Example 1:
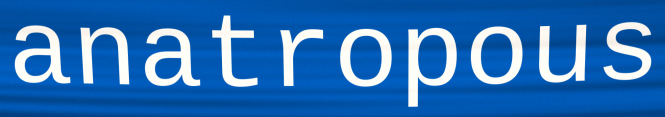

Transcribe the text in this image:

anatropous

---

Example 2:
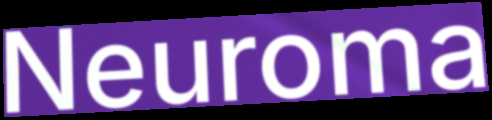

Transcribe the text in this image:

Neuroma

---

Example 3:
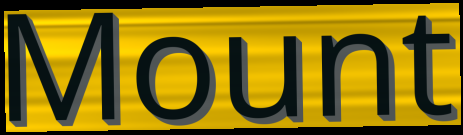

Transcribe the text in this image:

Mount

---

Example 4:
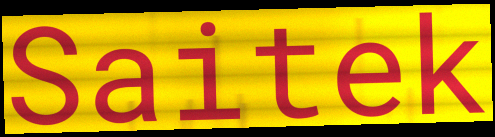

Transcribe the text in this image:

Saitek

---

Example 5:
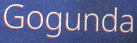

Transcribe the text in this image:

Gogunda